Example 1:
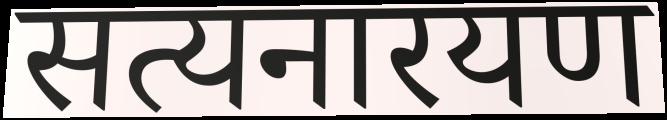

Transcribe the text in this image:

सत्यनारयण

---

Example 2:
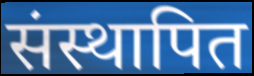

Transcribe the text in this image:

संस्थापित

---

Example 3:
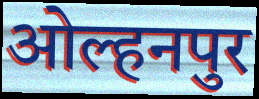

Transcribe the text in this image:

ओल्हनपुर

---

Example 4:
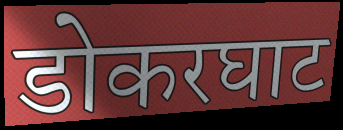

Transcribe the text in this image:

डोकरघाट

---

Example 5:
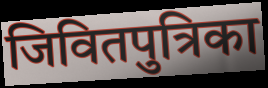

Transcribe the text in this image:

जिवितपुत्रिका